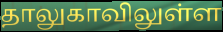
தாலுகாவிலுள்ள